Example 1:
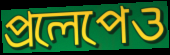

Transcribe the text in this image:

প্রলেপেও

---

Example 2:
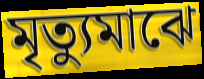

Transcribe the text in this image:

মৃত্যুমাঝে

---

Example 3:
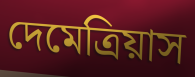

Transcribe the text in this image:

দেমেত্রিয়াস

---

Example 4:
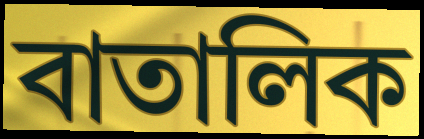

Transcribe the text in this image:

বাতালিক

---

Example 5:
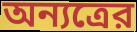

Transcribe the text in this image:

অন্যত্রের